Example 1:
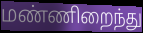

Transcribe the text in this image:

மண்ணிறைந்து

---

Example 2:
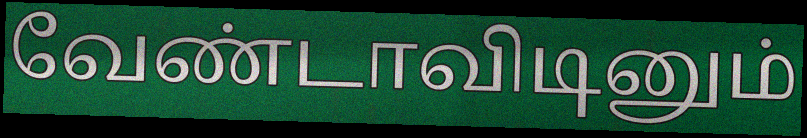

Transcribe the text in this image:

வேண்டாவிடினும்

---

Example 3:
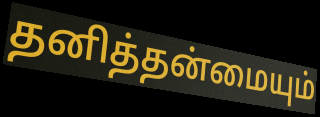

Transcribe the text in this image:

தனித்தன்மையும்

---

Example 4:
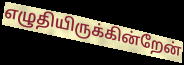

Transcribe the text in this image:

எழுதியிருக்கின்றேன்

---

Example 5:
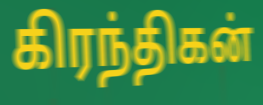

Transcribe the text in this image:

கிரந்திகன்